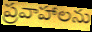
ప్రవాహాలను